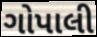
ગોપાલી